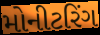
મોનીટરિંગ